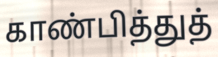
காண்பித்துத்